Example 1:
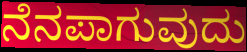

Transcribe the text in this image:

ನೆನಪಾಗುವುದು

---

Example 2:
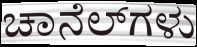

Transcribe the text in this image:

ಚಾನೆಲ್‌ಗಳು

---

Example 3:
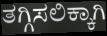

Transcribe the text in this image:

ತಗ್ಗಿಸಲಿಕ್ಕಾಗಿ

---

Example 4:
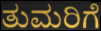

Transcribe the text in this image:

ತುಮರಿಗೆ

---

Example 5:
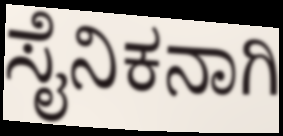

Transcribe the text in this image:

ಸೈನಿಕನಾಗಿ